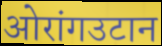
ओरांगउटान